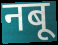
नबू